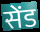
सेंड